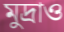
মুদ্রাও